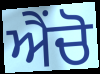
ਐਂਚੋ